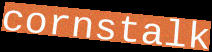
cornstalk